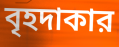
বৃহদাকার